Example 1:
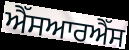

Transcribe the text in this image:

ਐੱਸਆਰਐੱਸ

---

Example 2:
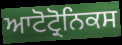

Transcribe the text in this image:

ਆਟੋਟ੍ਰੋਨਿਕਸ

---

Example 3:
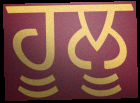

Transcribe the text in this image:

ਹੂਲੂ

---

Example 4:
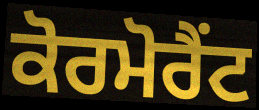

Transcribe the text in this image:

ਕੋਰਮੋਰੈਂਟ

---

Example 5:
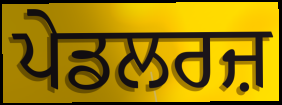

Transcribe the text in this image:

ਪੇਡਲਰਜ਼